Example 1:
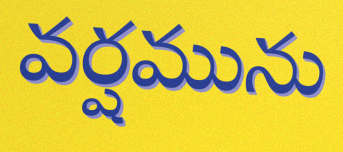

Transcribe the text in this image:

వర్షమును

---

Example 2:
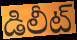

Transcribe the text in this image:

డిలీట్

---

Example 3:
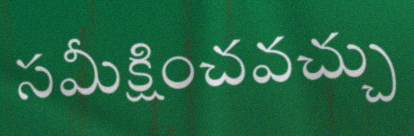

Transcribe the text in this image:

సమీక్షించవచ్చు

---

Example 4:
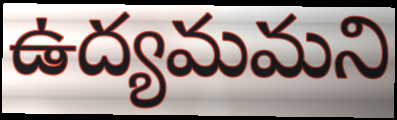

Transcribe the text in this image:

ఉద్యమమని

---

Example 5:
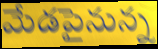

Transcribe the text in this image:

మేడపైనున్న